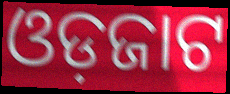
ଓଡ଼ଜାଟ